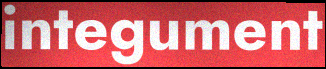
integument